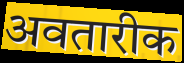
अवतारीक